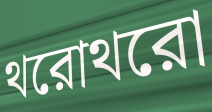
থরোথরো